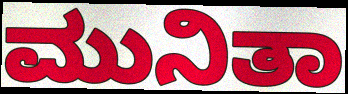
ಮುನಿತಾ